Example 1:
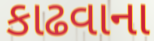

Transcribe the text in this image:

કાઢવાના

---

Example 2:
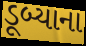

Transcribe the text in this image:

ડૂબ્યાના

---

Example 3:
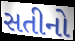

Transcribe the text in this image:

સતીનો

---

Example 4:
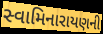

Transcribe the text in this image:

સ્વામિનારાયણની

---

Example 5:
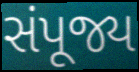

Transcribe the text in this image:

સંપૂજ્ય